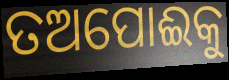
ତଅପୋଈକୁ